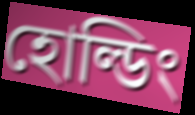
হোল্ডিং